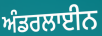
ਅੰਡਰਲਾਈਨ